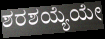
ಶರಶಯ್ಯೆಯೇ